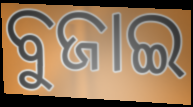
ବୁଜାଇ